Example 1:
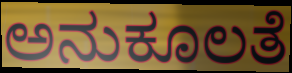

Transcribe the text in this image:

ಅನುಕೂಲತೆ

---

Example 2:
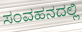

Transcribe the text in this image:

ಸಂವಹನದಲ್ಲಿ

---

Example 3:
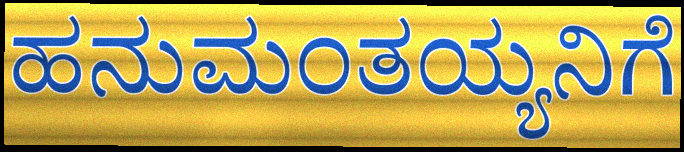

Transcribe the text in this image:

ಹನುಮಂತಯ್ಯನಿಗೆ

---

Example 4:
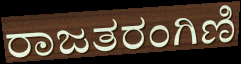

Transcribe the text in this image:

ರಾಜತರಂಗಿಣಿ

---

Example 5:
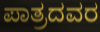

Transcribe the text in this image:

ಪಾತ್ರದವರ